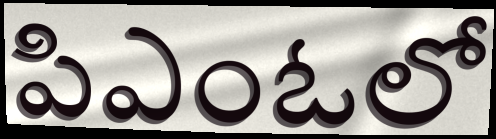
పిఎంఓలో